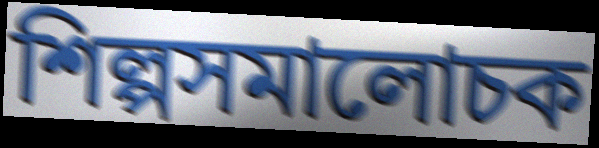
শিল্পসমালোচক